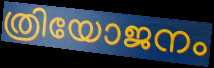
ത്രിയോജനം